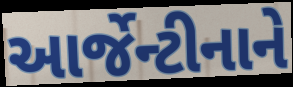
આર્જેન્ટીનાને